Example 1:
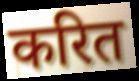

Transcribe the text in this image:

करित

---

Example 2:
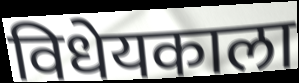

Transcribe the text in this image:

विधेयकाला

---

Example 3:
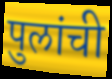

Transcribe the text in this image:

पुलांची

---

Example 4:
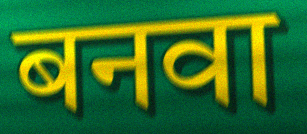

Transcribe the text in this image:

बनवा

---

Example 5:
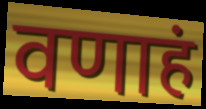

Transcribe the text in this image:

वणाहं